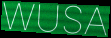
WUSA